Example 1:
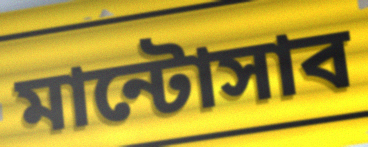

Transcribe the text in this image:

মান্টোসাব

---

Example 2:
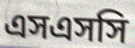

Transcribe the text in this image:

এসএসসি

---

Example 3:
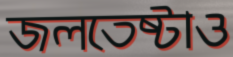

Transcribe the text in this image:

জলতেষ্টাও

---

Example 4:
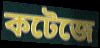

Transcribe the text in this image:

কটেজে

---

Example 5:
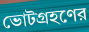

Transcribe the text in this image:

ভোটগ্রহণের